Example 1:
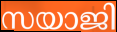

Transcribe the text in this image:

സയാജി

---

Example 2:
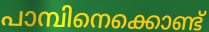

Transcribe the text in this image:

പാമ്പിനെക്കൊണ്ട്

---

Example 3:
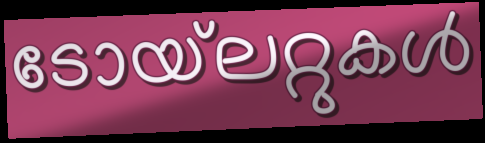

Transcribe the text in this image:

ടോയ്‌ലറ്റുകൾ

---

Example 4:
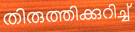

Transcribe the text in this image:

തിരുത്തിക്കുറിച്ച്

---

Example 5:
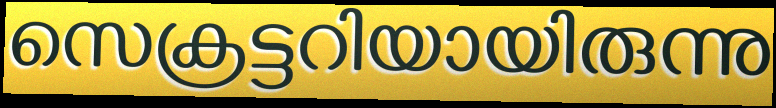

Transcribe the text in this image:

സെക്രട്ടറിയായിരുന്നു